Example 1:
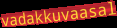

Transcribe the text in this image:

vadakkuvaasal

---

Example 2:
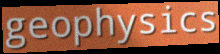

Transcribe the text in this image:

geophysics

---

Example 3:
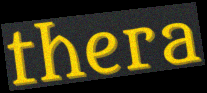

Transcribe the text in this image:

thera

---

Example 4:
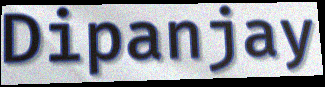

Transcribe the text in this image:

Dipanjay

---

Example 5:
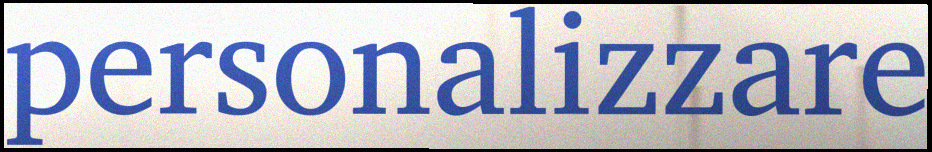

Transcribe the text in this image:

personalizzare